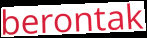
berontak